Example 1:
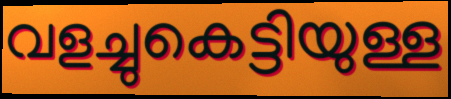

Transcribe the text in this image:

വളച്ചുകെട്ടിയുള്ള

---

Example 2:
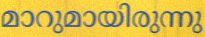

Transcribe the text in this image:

മാറുമായിരുന്നു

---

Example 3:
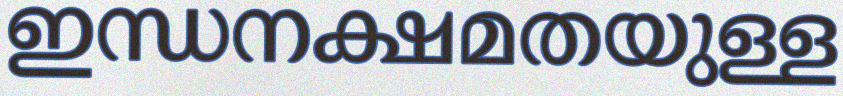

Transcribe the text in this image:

ഇന്ധനക്ഷമതയുള്ള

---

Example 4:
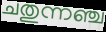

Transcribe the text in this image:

ചതുന്നഞ്ച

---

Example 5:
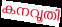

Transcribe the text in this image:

കനവൂതി